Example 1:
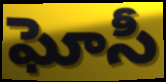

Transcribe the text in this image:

ఘోసీ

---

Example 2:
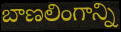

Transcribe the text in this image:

బాణలింగాన్ని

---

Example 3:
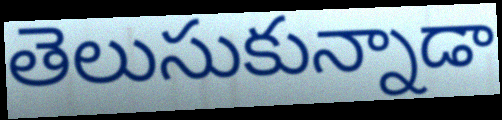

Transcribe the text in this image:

తెలుసుకున్నాడా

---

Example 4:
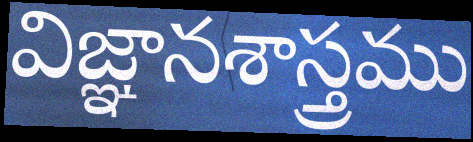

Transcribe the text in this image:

విజ్ఞానశాస్త్రము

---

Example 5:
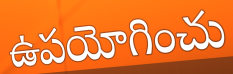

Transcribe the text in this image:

ఉపయోగించు